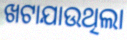
ଖଟାଯାଉଥିଲା